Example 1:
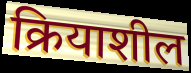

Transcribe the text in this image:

क्रियाशील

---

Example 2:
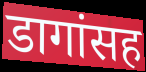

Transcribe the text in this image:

डागांसह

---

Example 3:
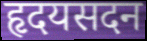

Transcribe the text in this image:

हृदयसदन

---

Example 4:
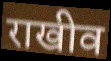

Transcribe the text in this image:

राखीव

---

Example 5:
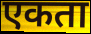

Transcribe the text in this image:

एकता